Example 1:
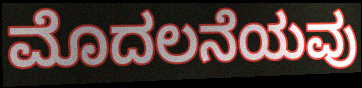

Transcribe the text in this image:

ಮೊದಲನೆಯವು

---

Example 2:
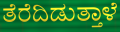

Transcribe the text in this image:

ತೆರೆದಿಡುತ್ತಾಳೆ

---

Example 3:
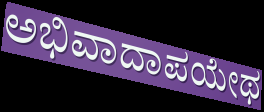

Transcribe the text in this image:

ಅಭಿವಾದಾಪಯೇಥ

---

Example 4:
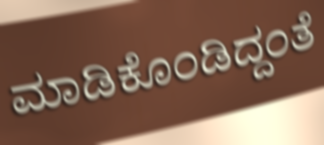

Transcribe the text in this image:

ಮಾಡಿಕೊಂಡಿದ್ದಂತೆ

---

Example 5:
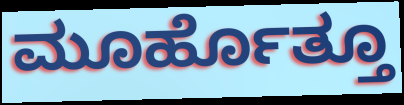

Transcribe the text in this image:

ಮೂರ್ಹೊತ್ತೂ